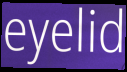
eyelid